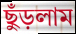
ছুঁড়লাম